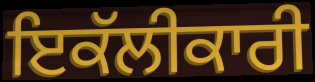
ਇਕੱਲੀਕਾਰੀ